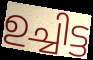
ഉച്ചിട്ട